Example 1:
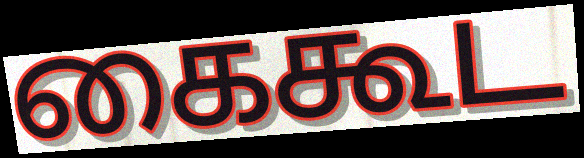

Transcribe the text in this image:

கைகூட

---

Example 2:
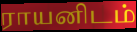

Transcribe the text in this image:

ராயனிடம்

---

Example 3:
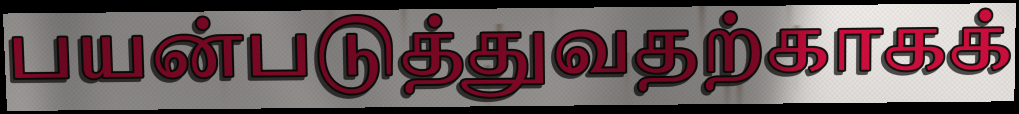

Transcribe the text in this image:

பயன்படுத்துவதற்காகக்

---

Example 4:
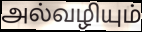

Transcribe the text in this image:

அல்வழியும்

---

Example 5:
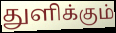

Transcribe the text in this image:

துளிக்கும்